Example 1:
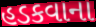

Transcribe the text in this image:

હડકવાના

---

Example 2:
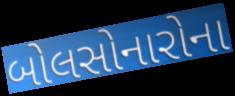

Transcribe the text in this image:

બોલસોનારોના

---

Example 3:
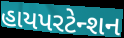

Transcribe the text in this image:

હાયપરટેન્શન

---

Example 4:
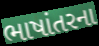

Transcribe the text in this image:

ભાષાંતરના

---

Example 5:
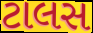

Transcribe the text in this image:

ટાલસ